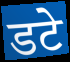
डटे